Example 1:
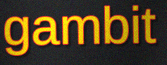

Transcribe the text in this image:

gambit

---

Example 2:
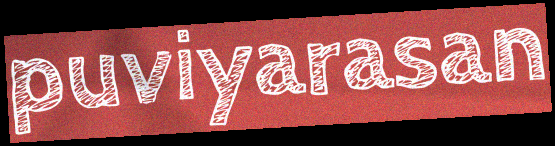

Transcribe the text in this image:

puviyarasan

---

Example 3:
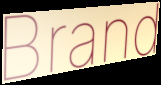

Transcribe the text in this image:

Brand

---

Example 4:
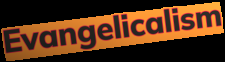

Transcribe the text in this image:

Evangelicalism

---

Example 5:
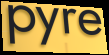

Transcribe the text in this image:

pyre